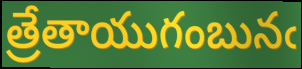
త్రేతాయుగంబునఁ